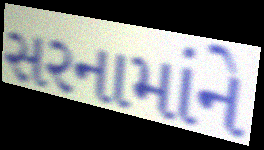
સરનામાંને